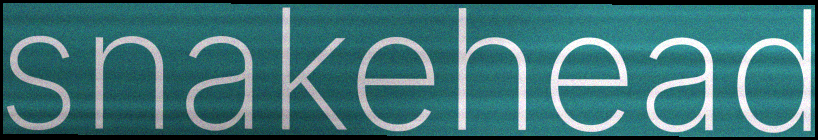
snakehead